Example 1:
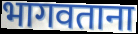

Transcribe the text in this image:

भागवताना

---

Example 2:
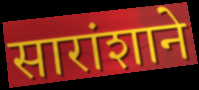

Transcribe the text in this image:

सारांशाने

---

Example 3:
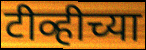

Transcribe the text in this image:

टीव्हीच्या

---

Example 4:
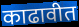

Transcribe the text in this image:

काढावीत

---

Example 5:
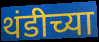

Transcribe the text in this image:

थंडीच्या